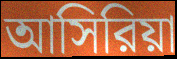
আসিরিয়া